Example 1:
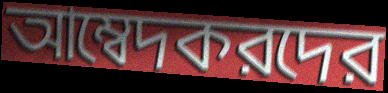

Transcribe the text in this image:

আম্বেদকরদের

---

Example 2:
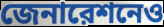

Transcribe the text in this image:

জেনারেশনেও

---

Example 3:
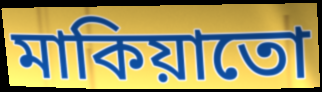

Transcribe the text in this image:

মাকিয়াতো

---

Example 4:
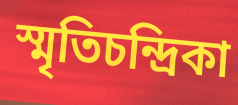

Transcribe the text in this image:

স্মৃতিচন্দ্রিকা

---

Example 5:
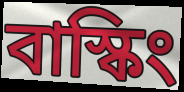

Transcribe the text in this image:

বাস্কিং